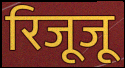
रिजूजू